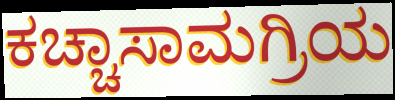
ಕಚ್ಚಾಸಾಮಗ್ರಿಯ